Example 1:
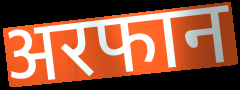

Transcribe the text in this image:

अरफान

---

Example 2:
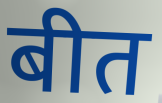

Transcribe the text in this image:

बीत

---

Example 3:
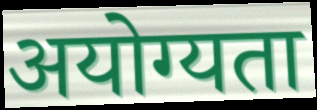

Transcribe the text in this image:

अयोग्यता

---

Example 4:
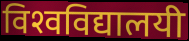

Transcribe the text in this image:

विश्वविद्यालयी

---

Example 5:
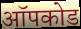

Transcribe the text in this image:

ऑपकोड